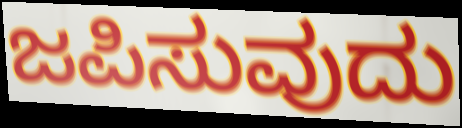
ಜಪಿಸುವುದು